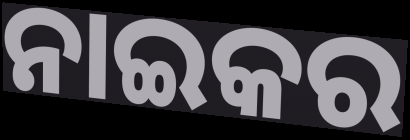
ନାଇକର